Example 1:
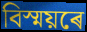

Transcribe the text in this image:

বিস্ময়ৰে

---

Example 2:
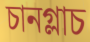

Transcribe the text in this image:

চানগ্লাচ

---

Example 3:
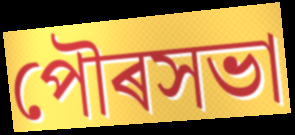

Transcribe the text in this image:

পৌৰসভা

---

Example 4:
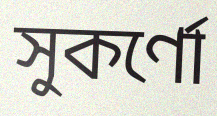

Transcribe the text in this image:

সুকৰ্ণো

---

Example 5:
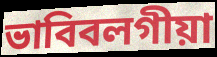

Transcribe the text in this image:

ভাবিবলগীয়া